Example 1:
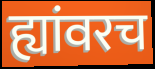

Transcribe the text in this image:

ह्यांवरच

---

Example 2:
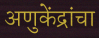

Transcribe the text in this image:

अणुकेंद्रांचा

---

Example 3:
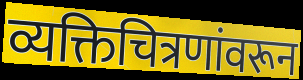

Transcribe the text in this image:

व्यक्तिचित्रणांवरून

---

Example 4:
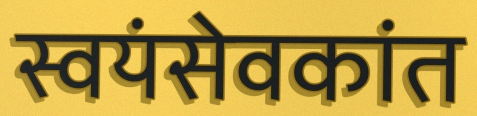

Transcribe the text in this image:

स्वयंसेवकांत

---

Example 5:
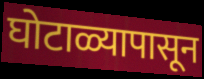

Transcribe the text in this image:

घोटाळ्यापासून